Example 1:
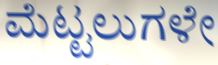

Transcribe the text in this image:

ಮೆಟ್ಟಲುಗಳೇ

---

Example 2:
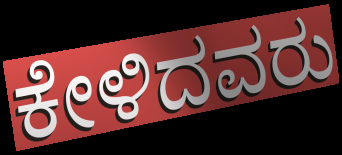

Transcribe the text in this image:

ಕೇಳಿದವರು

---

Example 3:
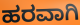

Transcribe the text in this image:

ಹರವಾಗಿ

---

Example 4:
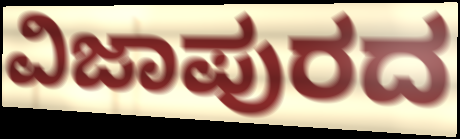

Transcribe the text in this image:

ವಿಜಾಪುರದ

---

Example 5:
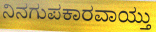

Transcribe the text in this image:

ನಿನಗುಪಕಾರವಾಯ್ತು